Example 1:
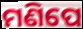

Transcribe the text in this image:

ମଣିପେ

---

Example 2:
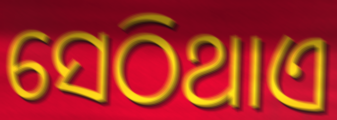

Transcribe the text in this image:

ସେଠିଥାଏ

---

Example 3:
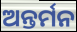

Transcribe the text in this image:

ଅନ୍ତର୍ମନ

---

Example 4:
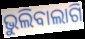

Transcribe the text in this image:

ଭୁଲିବାଲାଗି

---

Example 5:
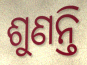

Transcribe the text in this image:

ଶୁଣନ୍ତି